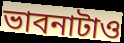
ভাবনাটাও